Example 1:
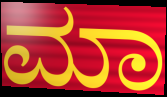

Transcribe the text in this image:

ಮಾ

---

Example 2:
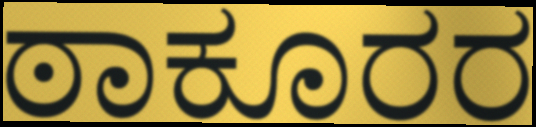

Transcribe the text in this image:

ಠಾಕೂರರ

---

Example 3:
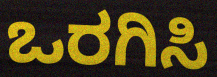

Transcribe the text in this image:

ಒರಗಿಸಿ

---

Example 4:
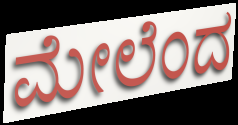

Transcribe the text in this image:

ಮೇಲೆಂದ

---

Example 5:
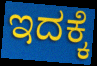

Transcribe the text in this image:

ಇದಕ್ಕೆ